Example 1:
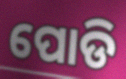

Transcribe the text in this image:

ପୋଡି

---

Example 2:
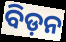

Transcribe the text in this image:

ବିଡ଼ନ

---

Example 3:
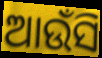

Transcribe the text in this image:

ଆଉଁସି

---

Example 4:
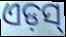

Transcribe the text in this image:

ଏଡ଼ସ୍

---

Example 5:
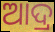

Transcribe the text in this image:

ଆଦ୍ର